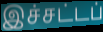
இச்சட்டப்